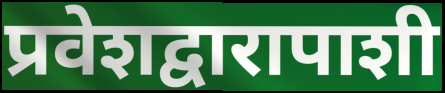
प्रवेशद्वारापाशी